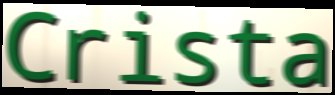
Crista